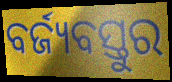
ବର୍ଜ୍ୟବସ୍ତୁର